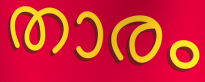
താരം